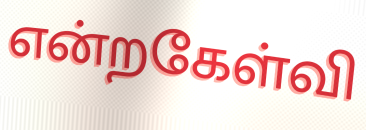
என்றகேள்வி